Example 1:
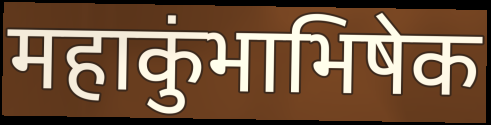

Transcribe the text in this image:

महाकुंभाभिषेक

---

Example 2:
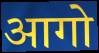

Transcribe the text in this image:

आगो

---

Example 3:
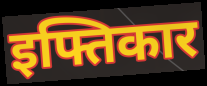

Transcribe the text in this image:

इफ्तिकार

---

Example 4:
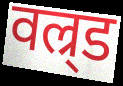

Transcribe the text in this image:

वल्र्ड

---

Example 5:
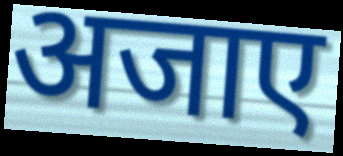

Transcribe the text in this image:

अजाए